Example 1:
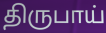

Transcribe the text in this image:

திருபாய்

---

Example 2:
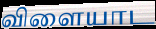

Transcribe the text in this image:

விளையாட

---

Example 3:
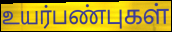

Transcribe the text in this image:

உயர்பண்புகள்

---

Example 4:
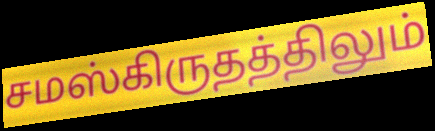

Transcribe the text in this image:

சமஸ்கிருதத்திலும்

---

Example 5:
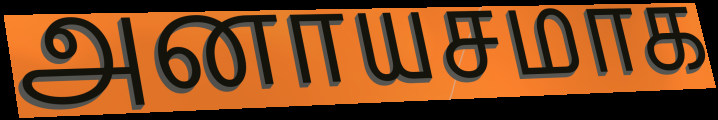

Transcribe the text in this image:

அனாயசமாக